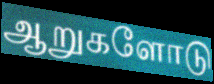
ஆறுகளோடு